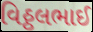
વિઠ્ઠલભાઈ